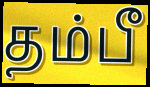
தம்பீ